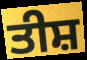
ਤੀਸ਼